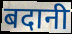
बदानी